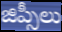
జిప్సీలు